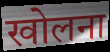
खोलना